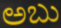
ಅಬು